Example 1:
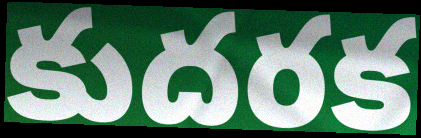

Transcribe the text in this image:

కుదరక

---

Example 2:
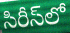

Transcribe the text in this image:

సిరీస్‌లో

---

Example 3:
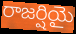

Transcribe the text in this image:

రాజర్షియై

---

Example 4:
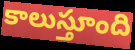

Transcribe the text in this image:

కాలుస్తూంది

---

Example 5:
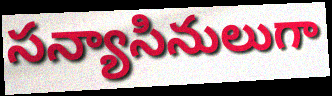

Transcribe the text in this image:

సన్యాసినులుగా